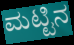
ಮಟ್ಟಿನ